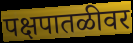
पक्षपातळीवर